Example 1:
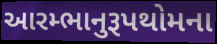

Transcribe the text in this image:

આરમ્ભાનુરૂપથોમના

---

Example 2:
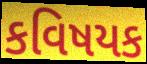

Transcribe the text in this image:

કવિષયક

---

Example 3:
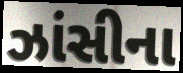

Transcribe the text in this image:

ઝાંસીના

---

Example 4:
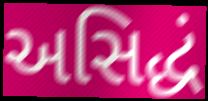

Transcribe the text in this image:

અસિદ્ધં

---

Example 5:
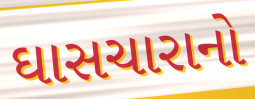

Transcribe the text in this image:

ઘાસચારાનો